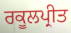
ਰਕੂਲਪ੍ਰੀਤ